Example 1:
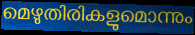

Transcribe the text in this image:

മെഴുതിരികളുമൊന്നും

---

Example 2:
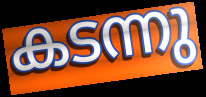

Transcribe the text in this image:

കടന്നു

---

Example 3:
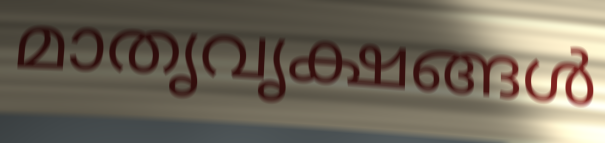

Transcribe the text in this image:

മാതൃവൃക്ഷങ്ങൾ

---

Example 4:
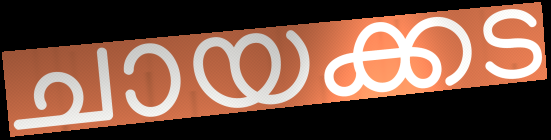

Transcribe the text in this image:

ചായക്കട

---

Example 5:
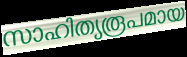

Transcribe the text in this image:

സാഹിത്യരൂപമായ